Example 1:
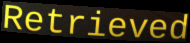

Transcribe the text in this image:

Retrieved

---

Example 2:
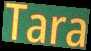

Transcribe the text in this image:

Tara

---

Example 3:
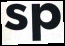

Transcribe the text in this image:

sp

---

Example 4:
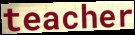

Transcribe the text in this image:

teacher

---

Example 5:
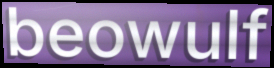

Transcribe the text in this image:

beowulf